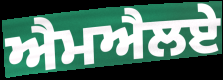
ਐਮਐਲਏ